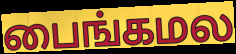
பைங்கமல